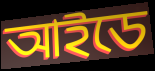
আইডে